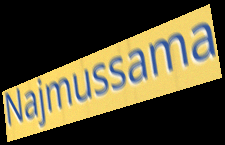
Najmussama